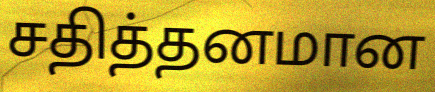
சதித்தனமான